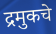
द्रमुकचे